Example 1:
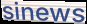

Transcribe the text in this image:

sinews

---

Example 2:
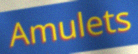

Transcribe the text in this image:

Amulets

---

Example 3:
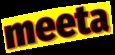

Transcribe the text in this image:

meeta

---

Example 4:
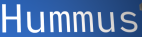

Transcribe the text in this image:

Hummus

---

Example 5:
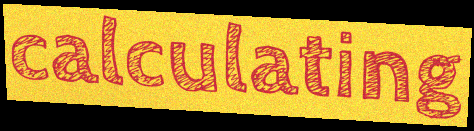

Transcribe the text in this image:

calculating